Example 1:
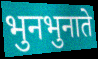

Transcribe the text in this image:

भुनभुनाते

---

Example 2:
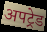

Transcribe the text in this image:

अपट्रेड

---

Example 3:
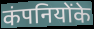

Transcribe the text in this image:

कंपनियोंके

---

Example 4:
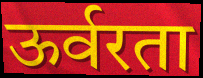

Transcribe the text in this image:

ऊर्वरता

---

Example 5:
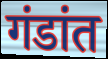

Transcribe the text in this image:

गंडांत